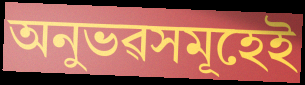
অনুভৱসমূহেই